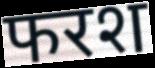
फरश